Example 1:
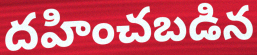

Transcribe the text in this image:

దహించబడిన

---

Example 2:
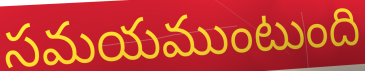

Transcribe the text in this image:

సమయముంటుంది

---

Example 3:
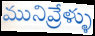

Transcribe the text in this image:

మునివ్రేళ్ళు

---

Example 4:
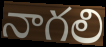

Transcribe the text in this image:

నాగలి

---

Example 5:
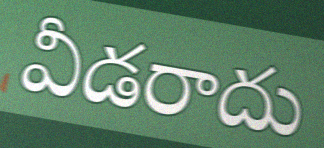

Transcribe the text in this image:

వీడరాదు